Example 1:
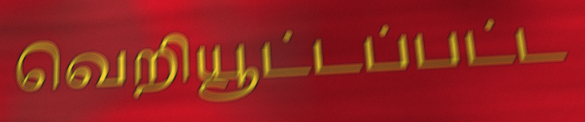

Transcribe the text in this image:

வெறியூட்டப்பட்ட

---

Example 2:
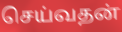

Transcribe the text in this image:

செய்வதன்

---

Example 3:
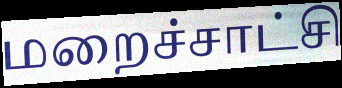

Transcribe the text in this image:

மறைச்சாட்சி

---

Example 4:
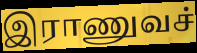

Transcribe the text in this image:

இராணுவச்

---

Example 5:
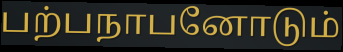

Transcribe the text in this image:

பற்பநாபனோடும்